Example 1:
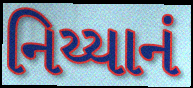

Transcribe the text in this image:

નિય્યાનં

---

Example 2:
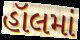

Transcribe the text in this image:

હૉલમાં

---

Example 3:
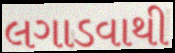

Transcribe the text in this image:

લગાડવાથી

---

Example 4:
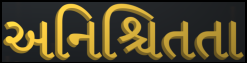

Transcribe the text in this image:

અનિશ્ચિતતા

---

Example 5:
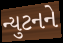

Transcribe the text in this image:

ન્યુટનને